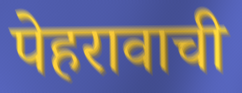
पेहरावाची